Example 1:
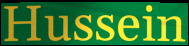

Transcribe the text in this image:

Hussein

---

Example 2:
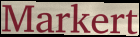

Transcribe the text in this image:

Markert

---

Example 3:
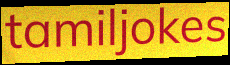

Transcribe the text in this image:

tamiljokes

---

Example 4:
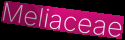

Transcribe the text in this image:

Meliaceae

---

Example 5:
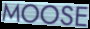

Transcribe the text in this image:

MOOSE